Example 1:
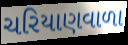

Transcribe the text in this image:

ચરિયાણવાળા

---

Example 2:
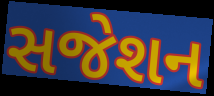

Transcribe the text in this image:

સજેશન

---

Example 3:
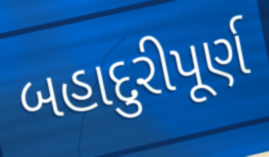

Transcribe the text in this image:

બહાદુરીપૂર્ણ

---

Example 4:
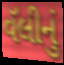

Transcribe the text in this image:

વૅલીનું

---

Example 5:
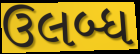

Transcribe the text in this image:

ઉલબ્ધ